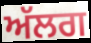
ਅੱਲਗ